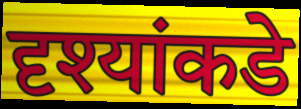
दृश्यांकडे